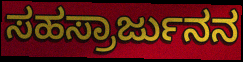
ಸಹಸ್ರಾರ್ಜುನನ